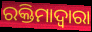
ରକ୍ତିମାଦ୍ୱାରା